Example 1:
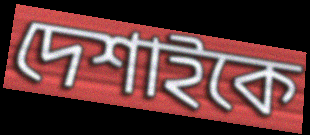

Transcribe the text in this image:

দেশাইকে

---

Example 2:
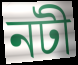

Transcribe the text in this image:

নটী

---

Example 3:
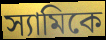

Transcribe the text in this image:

স্যামিকে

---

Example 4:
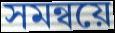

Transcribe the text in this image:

সমন্বয়ে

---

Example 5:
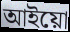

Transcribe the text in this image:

আইয়ো